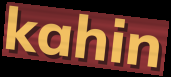
kahin